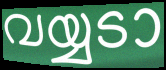
വയ്യടാ